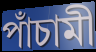
পাঁচামী